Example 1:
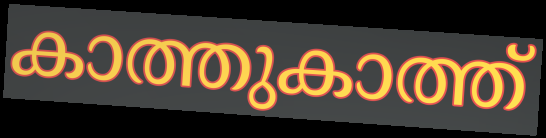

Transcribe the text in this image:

കാത്തുകാത്ത്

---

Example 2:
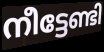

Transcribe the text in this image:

നീട്ടേണ്ടി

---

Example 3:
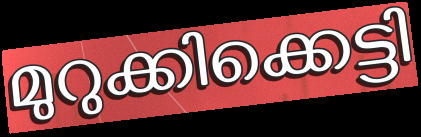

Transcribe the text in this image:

മുറുക്കിക്കെട്ടി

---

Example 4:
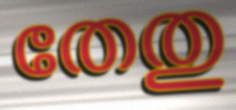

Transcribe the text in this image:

തേതു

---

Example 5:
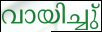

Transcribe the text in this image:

വായിച്ചു്